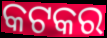
କଟକର